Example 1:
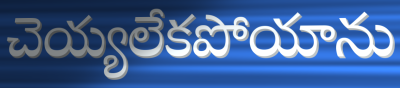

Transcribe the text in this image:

చెయ్యలేకపోయాను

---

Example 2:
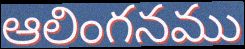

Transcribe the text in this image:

ఆలింగనము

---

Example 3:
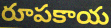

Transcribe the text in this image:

రూపకాయ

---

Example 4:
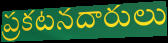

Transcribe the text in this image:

ప్రకటనదారులు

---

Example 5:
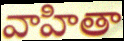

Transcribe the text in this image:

వాహితా